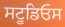
ਸਟੂਡਿਓਸ